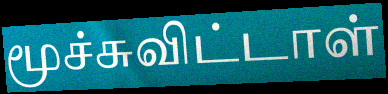
மூச்சுவிட்டாள்